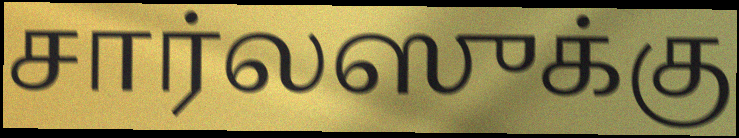
சார்லஸுக்கு